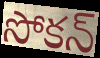
సోకన్